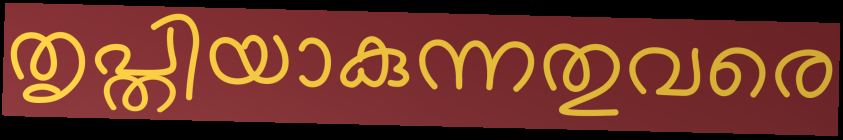
തൃപ്തിയാകുന്നതുവരെ